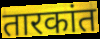
तारकांत